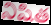
నిషిత